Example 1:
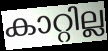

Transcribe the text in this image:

കാറ്റില്ല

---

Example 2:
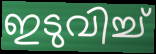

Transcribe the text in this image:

ഇടുവിച്ച്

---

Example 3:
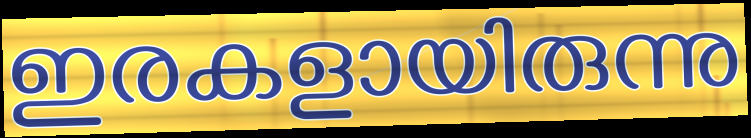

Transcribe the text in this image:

ഇരകളായിരുന്നു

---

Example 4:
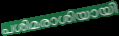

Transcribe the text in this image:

പശിമരാശിയായി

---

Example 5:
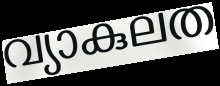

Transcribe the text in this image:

വ്യാകുലത